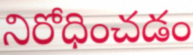
నిరోధించడం